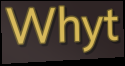
Whyt